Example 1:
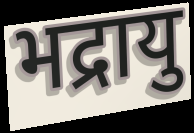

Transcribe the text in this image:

भद्रायु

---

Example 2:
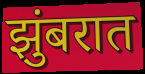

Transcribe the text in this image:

झुंबरात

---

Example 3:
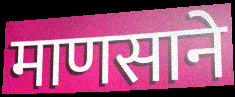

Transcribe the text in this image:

माणसाने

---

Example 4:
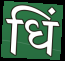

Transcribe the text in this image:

धिं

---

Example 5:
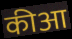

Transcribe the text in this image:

कीआ